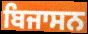
ਬਿਜਾਸਨ